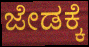
ಜೇಡಕ್ಕೆ